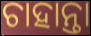
ଚାହାନ୍ତା